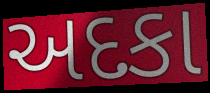
અદકા